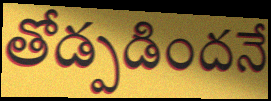
తోడ్పడిందనే